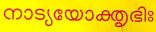
നാട്യയോക്തൃഭിഃ